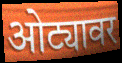
ओट्यावर